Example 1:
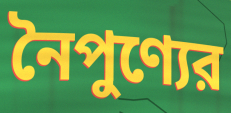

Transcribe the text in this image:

নৈপুণ্যের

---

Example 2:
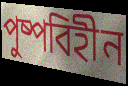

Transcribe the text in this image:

পুষ্পবিহীন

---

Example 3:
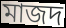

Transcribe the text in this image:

মাজদ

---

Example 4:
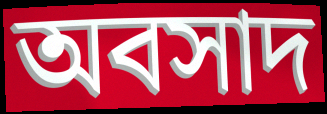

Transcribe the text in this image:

অবসাদ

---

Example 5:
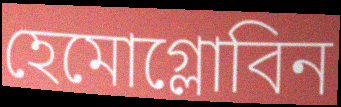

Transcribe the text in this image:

হেমোগ্লোবিন